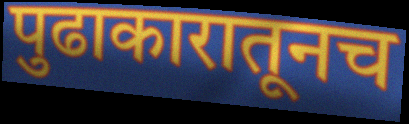
पुढाकारातूनच